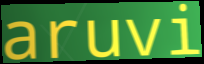
aruvi